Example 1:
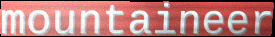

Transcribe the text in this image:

mountaineer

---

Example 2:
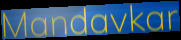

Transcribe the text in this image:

Mandavkar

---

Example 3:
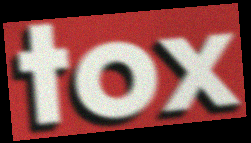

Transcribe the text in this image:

tox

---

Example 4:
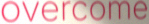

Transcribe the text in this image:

overcome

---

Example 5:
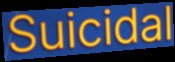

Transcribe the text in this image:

Suicidal